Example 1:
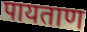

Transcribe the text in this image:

पायताण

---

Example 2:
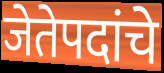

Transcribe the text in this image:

जेतेपदांचे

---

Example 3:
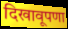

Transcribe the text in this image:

दिखावूपणा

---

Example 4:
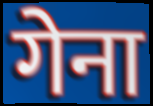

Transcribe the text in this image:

गेना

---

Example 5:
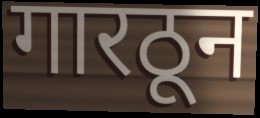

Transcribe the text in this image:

गारठून